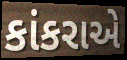
કાંકરાએ